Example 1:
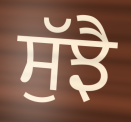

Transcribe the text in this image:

ਸੁੱਝੈ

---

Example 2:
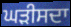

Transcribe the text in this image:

ਘੜੀਸਦਾ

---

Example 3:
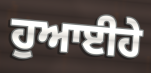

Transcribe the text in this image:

ਹੁਆਈਹੇ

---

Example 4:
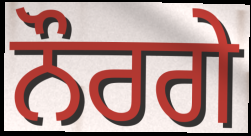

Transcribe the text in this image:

ਨੌਰਗੇ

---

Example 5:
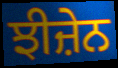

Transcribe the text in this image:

ਝੀਜ਼ੇਨ